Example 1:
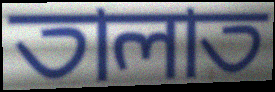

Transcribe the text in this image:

তালাত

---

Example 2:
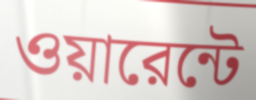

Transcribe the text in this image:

ওয়ারেন্টে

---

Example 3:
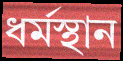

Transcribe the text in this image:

ধর্মস্থান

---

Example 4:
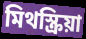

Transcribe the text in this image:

মিথস্ক্রিয়া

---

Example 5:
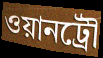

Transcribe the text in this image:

ওয়ানট্রৌ